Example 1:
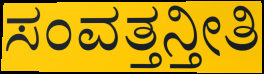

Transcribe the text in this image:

ಸಂವತ್ತನ್ತೀತಿ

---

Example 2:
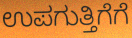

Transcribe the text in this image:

ಉಪಗುತ್ತಿಗೆಗೆ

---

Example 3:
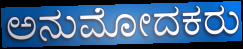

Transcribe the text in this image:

ಅನುಮೋದಕರು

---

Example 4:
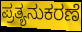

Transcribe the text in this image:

ಪ್ರತ್ಯನುಕರಣೆ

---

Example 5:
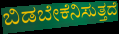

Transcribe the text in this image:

ಬಿಡಬೇಕೆನಿಸುತ್ತದೆ